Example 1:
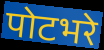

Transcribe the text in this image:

पोटभरे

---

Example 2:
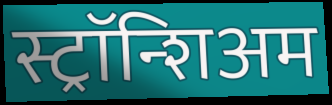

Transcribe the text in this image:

स्ट्रॉन्शिअम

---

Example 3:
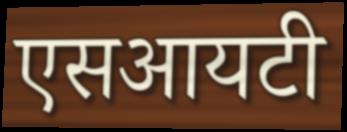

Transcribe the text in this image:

एसआयटी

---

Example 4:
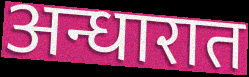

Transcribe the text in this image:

अन्धारात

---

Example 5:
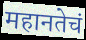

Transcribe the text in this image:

महानतेचं